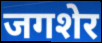
जगशेर